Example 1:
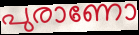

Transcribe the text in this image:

പുരാണോ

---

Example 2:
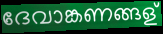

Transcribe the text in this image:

ദേവാങ്കണങ്ങള്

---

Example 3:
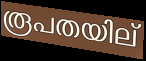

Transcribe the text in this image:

രൂപതയില്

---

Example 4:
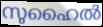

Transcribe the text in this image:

സുഹൈൽ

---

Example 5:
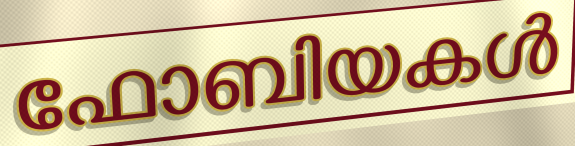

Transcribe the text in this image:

ഫോബിയകൾ